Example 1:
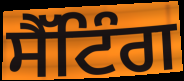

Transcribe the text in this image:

ਸੈੱਟਿੰਗ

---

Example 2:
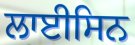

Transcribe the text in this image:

ਲਾਈਸਿਨ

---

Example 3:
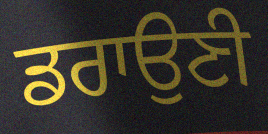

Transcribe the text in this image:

ਡਰਾਉਣੀ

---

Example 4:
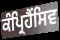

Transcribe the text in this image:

ਕੰਪ੍ਰਿਹੈਂਸਿਵ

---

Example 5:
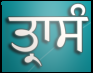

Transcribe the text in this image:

ਤ੍ਰਾਸੰ